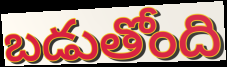
బడుతోంది